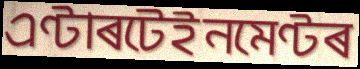
এণ্টাৰটেইনমেণ্টৰ